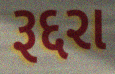
રૂદ્દરા